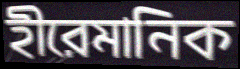
হীরেমানিক